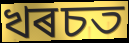
খৰচত